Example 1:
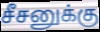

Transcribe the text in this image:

சீசனுக்கு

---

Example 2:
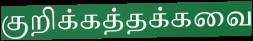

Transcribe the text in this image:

குறிக்கத்தக்கவை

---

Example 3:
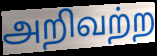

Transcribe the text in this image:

அறிவற்ற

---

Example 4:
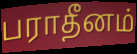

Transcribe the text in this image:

பராதீனம்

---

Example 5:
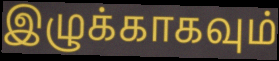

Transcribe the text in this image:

இழுக்காகவும்